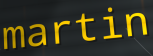
martin